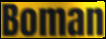
Boman